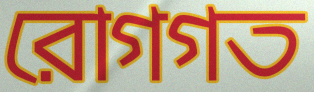
রোগগত